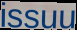
issuu